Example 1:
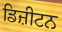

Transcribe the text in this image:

ਡਿਜ਼ੀਟਨ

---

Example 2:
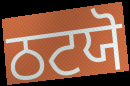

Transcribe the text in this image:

ਠਟਯੋ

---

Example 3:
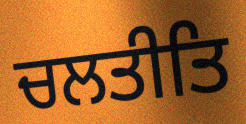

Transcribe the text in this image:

ਚਲਤੀਤਿ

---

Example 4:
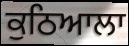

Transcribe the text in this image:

ਕੁਠਿਆਲਾ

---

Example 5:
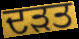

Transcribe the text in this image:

ਦੜਤ